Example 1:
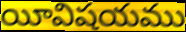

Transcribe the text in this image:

యీవిషయము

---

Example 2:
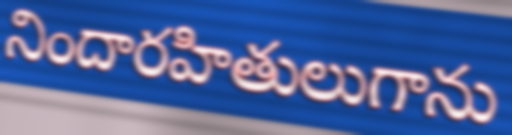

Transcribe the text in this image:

నిందారహితులుగాను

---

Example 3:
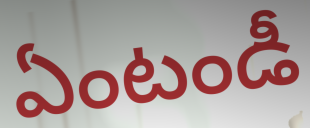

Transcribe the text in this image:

ఏంటండీ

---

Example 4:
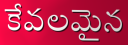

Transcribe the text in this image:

కేవలమైన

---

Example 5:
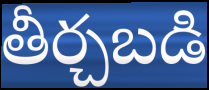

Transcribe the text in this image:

తీర్చబడి